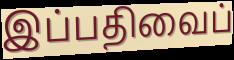
இப்பதிவைப்